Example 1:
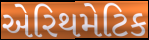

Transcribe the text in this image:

એરિથમેટિક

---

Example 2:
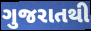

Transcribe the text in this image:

ગુજરાતથી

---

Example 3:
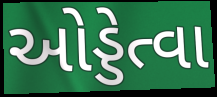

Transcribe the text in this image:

ઓડ્ડેત્વા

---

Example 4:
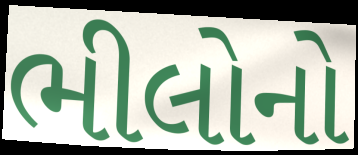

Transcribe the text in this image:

ભીલોનો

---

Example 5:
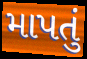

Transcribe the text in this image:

માપતું